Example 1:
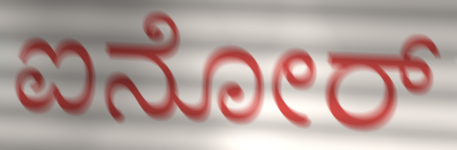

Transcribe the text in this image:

ಐನೋರ್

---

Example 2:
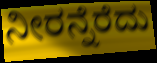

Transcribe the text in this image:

ನೀರನ್ನೆರೆದು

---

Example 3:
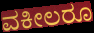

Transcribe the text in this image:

ವಕೀಲರೂ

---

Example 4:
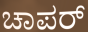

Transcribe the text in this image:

ಚಾಪರ್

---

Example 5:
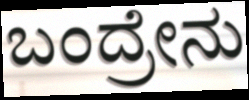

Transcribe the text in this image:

ಬಂದ್ರೇನು